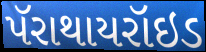
પૅરાથાયરૉઇડ